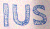
IUS